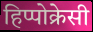
हिप्पोक्रेसी